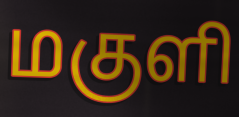
மகுளி